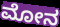
ಮೋನ